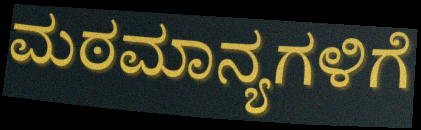
ಮಠಮಾನ್ಯಗಳಿಗೆ